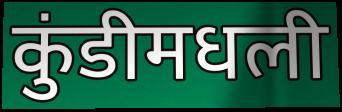
कुंडीमधली